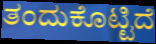
ತಂದುಕೊಟ್ಟಿದೆ